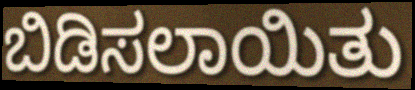
ಬಿಡಿಸಲಾಯಿತು